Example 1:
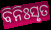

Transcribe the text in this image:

ବିନିଃସୃତ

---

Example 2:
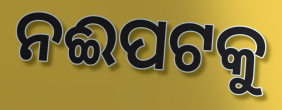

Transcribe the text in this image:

ନଈପଟକୁ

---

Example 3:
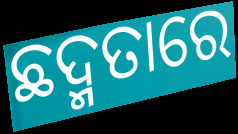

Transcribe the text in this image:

ଛଦ୍ମତାରେ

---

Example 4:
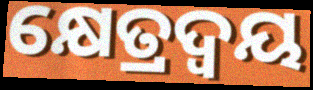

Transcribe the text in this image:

କ୍ଷେତ୍ରଦ୍ଵୟ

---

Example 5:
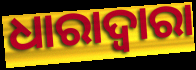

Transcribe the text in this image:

ଧାରାଦ୍ୱାରା